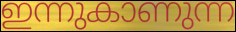
ഇന്നുകാണുന്ന